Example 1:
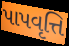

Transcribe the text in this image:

પાપવૃત્તિ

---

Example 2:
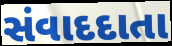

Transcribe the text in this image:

સંવાદદાતા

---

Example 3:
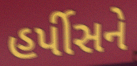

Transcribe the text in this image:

હર્પીસને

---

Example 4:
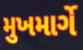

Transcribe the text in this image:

મુખમાર્ગે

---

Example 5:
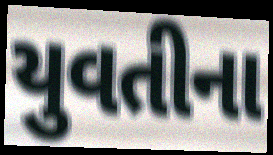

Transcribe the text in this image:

યુવતીના